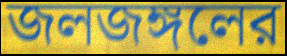
জলজঙ্গলের